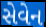
સેવેન